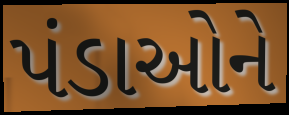
પંડાઓને